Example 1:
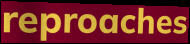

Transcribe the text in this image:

reproaches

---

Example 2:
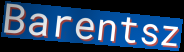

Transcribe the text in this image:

Barentsz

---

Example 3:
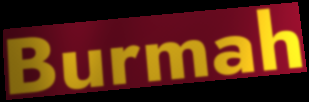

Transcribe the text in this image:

Burmah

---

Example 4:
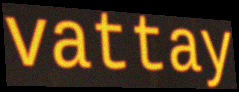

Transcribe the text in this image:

vattay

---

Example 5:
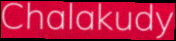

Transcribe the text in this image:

Chalakudy